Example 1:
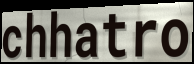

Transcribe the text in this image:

chhatro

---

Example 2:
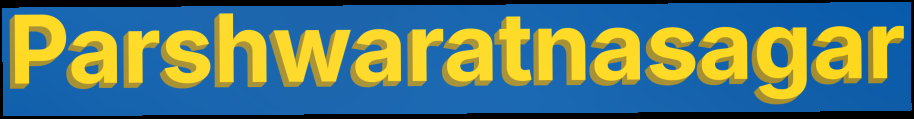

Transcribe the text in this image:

Parshwaratnasagar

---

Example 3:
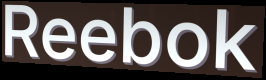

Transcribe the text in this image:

Reebok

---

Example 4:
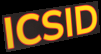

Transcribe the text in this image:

ICSID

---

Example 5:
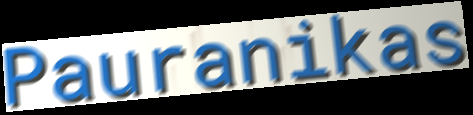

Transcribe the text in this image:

Pauranikas